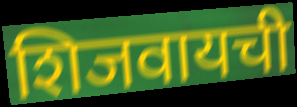
शिजवायची